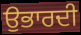
ਉਭਾਰਦੀ